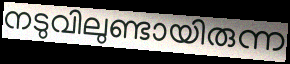
നടുവിലുണ്ടായിരുന്ന